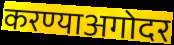
करण्याअगोदर